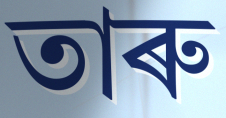
তাৰু